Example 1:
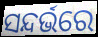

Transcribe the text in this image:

ସନ୍ଦର୍ଭରେ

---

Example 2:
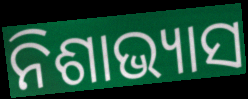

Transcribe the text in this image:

ନିଶାଭ୍ୟାସ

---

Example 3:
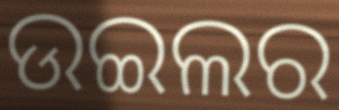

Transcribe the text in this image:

ଉଇଲର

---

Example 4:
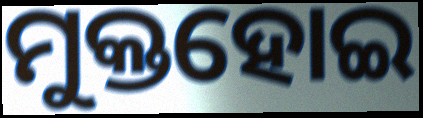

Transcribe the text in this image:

ମୁକ୍ତହୋଇ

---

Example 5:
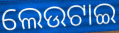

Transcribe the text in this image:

ଲେଉଟାଇ